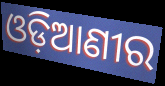
ଓଡ଼ିଆଣୀର